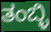
ತಂಬ್ಳಿ